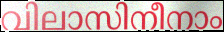
വിലാസിനീനാം